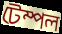
টেম্পল